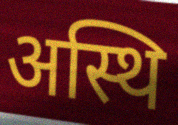
अस्थि